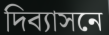
দিব্যাসনে